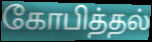
கோபித்தல்